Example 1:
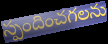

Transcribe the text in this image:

స్పందించగలను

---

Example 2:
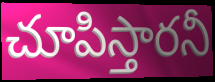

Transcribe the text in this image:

చూపిస్తారనీ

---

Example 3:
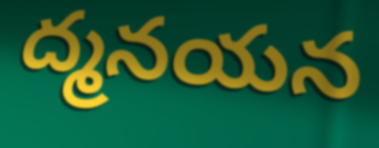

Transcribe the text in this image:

ద్మనయన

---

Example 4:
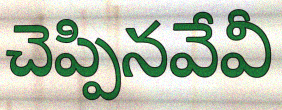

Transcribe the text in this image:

చెప్పినవేవీ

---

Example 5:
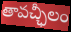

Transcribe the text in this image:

తావచ్ఛీలం